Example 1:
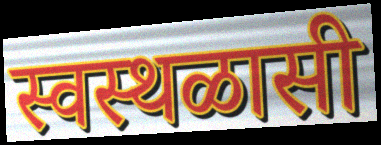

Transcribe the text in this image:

स्वस्थळासी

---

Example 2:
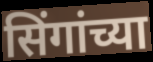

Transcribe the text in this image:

सिंगांच्या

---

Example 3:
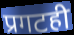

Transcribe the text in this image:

प्रगटही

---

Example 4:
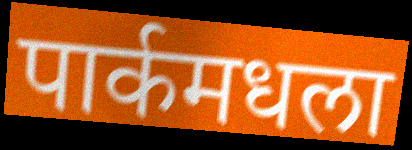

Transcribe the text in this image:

पार्कमधला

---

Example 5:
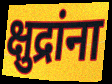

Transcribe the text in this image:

क्षुद्रांना